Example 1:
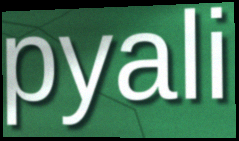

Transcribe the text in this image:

pyali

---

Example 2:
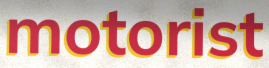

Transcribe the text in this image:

motorist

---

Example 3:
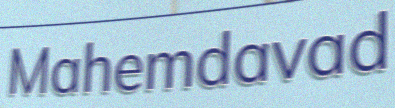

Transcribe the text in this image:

Mahemdavad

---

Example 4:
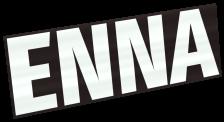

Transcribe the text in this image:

ENNA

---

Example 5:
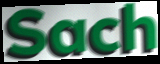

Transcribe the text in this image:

Sach